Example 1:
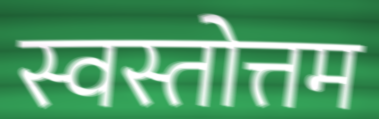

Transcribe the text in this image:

स्वस्तोत्तम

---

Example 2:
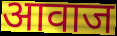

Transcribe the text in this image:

आवाज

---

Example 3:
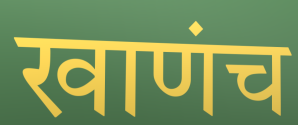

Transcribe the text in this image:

खाणंच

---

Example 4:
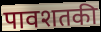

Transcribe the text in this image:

पावशतकी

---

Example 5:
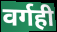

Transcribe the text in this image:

वर्गही